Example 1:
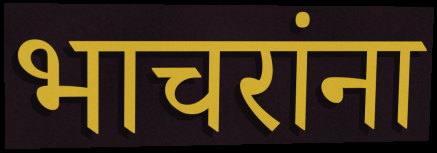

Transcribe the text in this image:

भाचरांना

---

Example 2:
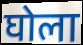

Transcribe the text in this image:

घोला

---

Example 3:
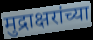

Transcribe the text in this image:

मुद्राक्षरांच्या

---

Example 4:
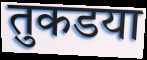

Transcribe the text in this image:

तुकडया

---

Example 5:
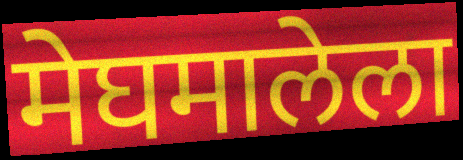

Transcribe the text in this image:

मेघमालेला